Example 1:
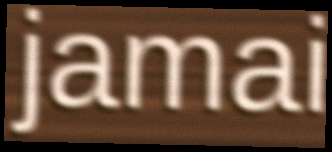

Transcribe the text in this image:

jamai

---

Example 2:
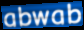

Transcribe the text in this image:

abwab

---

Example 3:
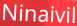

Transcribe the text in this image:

Ninaivil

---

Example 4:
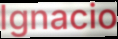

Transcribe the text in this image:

Ignacio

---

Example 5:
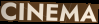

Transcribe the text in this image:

CINEMA